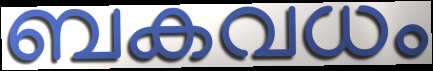
ബകവധം